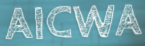
AICWA